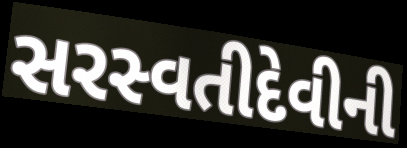
સરસ્વતીદેવીની